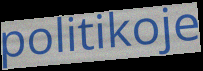
politikoje